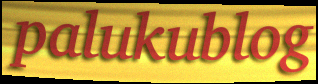
palukublog